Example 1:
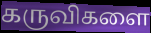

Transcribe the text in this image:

கருவிகளை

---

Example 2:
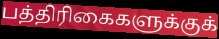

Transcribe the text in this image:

பத்திரிகைகளுக்குக்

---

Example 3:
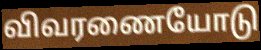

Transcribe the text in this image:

விவரணையோடு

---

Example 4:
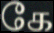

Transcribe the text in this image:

கே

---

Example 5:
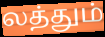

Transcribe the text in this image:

லத்தும்